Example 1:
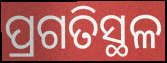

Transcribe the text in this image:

ପ୍ରଗତିସ୍ଥଳ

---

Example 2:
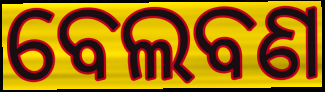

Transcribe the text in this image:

ବେଲବଣ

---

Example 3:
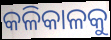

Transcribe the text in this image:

କଳିକାଳକୁ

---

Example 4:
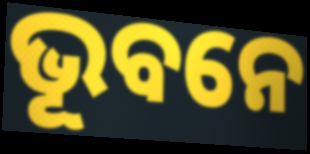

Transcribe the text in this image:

ଭୂବନେ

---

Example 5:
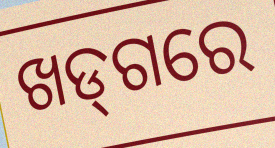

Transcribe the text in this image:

ଖଡ୍‌ଗରେ